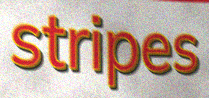
stripes